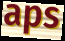
aps